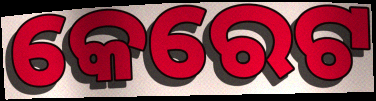
କେରେଟ